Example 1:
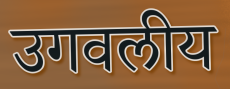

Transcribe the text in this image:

उगवलीय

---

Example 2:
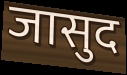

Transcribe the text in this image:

जासुद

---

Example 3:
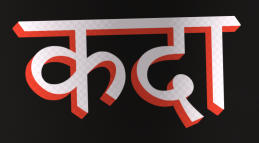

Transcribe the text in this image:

कदा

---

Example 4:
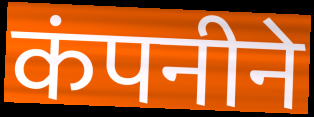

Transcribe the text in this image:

कंपनीने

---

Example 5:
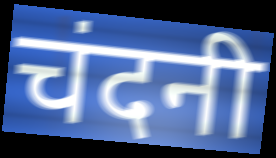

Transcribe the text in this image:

चंदनी